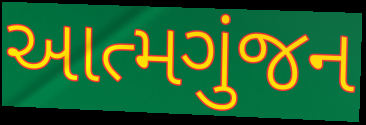
આત્મગુંજન